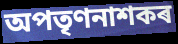
অপতৃণনাশকৰ